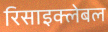
रिसाइक्लेबल